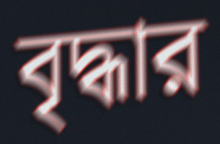
বৃদ্ধার